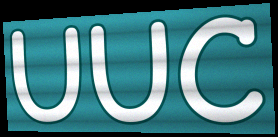
UUC